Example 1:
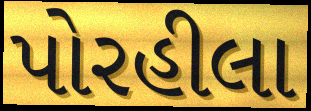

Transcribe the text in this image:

પોરહીલા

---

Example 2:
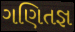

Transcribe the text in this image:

ગણિતજ્ઞ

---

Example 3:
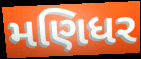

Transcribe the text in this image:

મણિધર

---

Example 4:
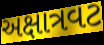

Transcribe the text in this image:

અક્ષાત્રવટ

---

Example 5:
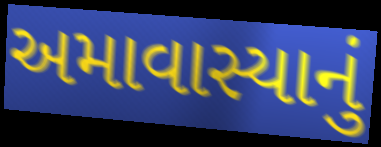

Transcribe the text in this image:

અમાવાસ્યાનું